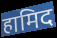
हामिद